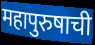
महापुरुषाची